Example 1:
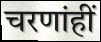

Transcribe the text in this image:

चरणांहीं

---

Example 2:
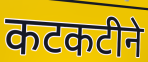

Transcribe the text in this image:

कटकटीने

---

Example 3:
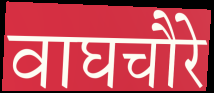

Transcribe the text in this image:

वाघचौरे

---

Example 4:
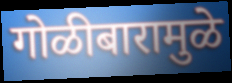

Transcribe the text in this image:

गोळीबारामुळे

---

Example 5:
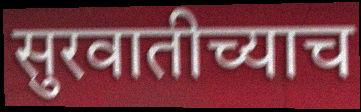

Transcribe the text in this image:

सुरवातीच्याच